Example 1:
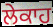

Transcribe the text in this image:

ਲੇਕਾਹ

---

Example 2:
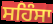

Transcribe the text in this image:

ਸਹਿੰਸਾ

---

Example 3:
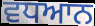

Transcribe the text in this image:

ਵਧਆਨ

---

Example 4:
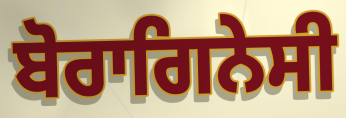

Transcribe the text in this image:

ਬੋਰਾਗਿਨੇਸੀ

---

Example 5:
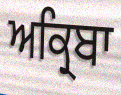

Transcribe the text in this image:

ਅਕ੍ਰਿਬਾ